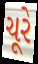
ચૂરે